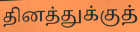
தினத்துக்குத்